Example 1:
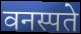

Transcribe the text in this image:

वनस्पते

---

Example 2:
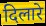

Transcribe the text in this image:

दिलारे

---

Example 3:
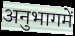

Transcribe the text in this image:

अनुभागमें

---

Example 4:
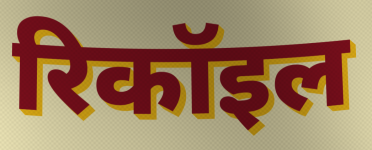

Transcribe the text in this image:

रिकॉइल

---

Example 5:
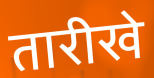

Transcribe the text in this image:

तारीखे